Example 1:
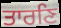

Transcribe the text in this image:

ਤਾਰਣਿ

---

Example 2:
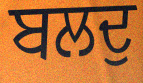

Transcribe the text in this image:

ਬਲਦੁ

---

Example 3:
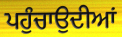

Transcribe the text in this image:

ਪਹੁੰਚਾਉਦੀਆਂ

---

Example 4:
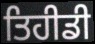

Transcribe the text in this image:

ਤਿਹੀਡੀ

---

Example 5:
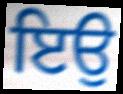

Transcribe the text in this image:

ਇਉ